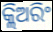
କ୍ଲିଅରିଂ